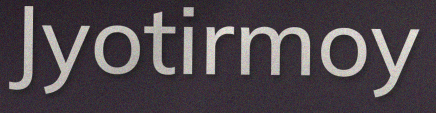
Jyotirmoy